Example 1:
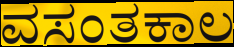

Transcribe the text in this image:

ವಸಂತಕಾಲ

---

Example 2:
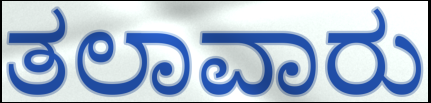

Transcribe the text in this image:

ತಲಾವಾರು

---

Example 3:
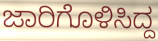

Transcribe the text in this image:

ಜಾರಿಗೊಳಿಸಿದ್ದ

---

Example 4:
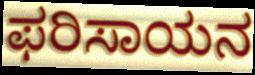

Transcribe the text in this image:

ಫರಿಸಾಯನ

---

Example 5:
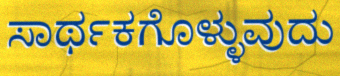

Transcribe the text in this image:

ಸಾರ್ಥಕಗೊಳ್ಳುವುದು